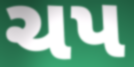
ચપ